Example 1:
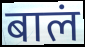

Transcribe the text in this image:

बालं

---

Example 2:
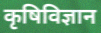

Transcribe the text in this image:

कृषिविज्ञान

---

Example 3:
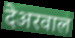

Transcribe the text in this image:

देअरवाल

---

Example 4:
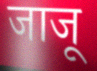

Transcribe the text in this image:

जाजू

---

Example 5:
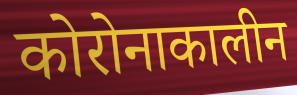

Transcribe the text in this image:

कोरोनाकालीन